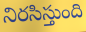
నిరసిస్తుంది